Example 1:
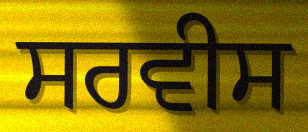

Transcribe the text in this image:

ਸਰਵੀਸ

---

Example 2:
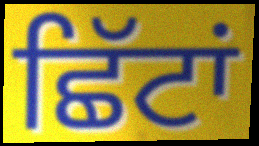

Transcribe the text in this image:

ਛਿੱਟਾਂ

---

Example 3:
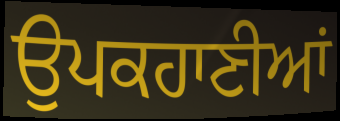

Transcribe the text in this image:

ਉਪਕਹਾਣੀਆਂ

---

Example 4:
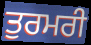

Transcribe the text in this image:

ਤੁਰਮਰੀ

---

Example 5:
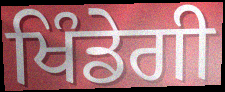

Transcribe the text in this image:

ਖਿੰਡੇਗੀ